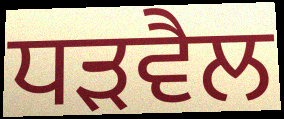
ਧੜਵੈਲ